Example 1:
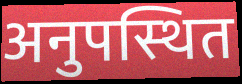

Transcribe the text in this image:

अनुपस्थित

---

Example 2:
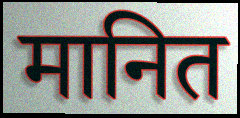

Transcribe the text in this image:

मानित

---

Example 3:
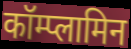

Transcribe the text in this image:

कॉम्प्लामिन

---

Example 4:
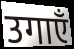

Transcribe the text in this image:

उगाएँ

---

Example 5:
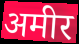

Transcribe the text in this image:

अमीर